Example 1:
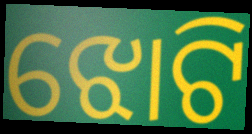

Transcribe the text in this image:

ଝୋଟି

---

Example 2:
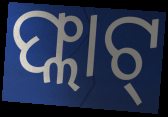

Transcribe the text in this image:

ଫ୍ଲାଟ୍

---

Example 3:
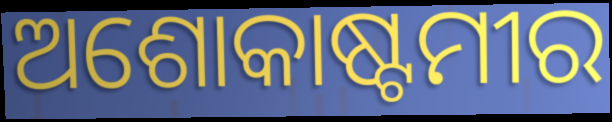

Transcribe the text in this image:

ଅଶୋକାଷ୍ଟମୀର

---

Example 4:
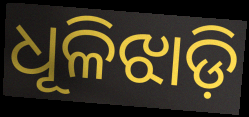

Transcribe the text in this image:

ଧୂଳିଝାଡ଼ି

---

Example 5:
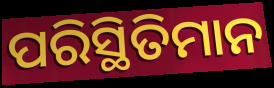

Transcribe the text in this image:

ପରିସ୍ଥିତିମାନ